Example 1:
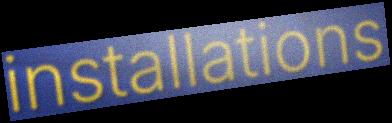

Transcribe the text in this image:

installations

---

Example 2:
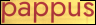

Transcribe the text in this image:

pappus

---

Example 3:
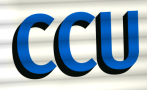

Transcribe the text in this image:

CCU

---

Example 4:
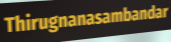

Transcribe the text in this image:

Thirugnanasambandar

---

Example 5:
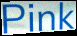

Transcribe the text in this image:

Pink